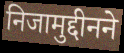
निजामुद्दीनने